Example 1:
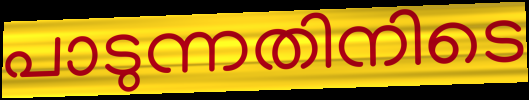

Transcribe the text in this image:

പാടുന്നതിനിടെ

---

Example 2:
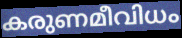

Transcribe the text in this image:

കരുണമീവിധം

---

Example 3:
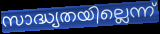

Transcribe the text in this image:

സാദ്ധ്യതയില്ലെന്ന്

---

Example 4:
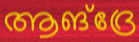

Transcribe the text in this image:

ആങ്ദ്രേ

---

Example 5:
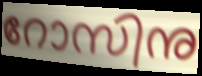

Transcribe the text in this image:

റോസിനു